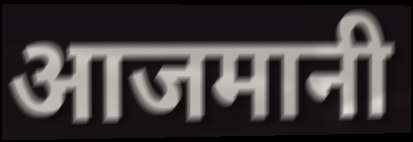
आजमानी